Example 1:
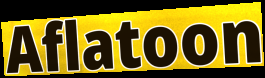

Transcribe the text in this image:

Aflatoon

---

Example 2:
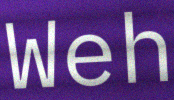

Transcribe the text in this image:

Weh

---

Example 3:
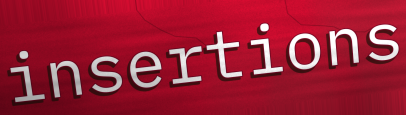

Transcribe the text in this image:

insertions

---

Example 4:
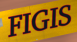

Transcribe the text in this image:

FIGIS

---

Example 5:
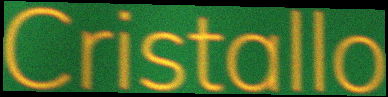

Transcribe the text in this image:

Cristallo